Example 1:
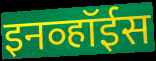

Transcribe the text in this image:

इनव्हॉईस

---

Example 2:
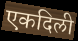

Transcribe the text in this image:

एकदिली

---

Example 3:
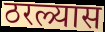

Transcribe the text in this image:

ठरल्यास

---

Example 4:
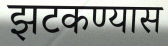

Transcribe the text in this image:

झटकण्यास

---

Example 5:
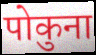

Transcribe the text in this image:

पोकुना